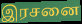
இரசனை